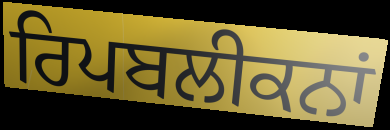
ਰਿਪਬਲੀਕਨਾਂ